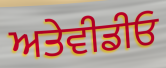
ਅਤੇਵੀਡੀਓ